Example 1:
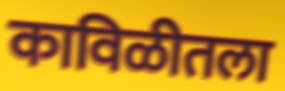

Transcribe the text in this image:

काविळीतला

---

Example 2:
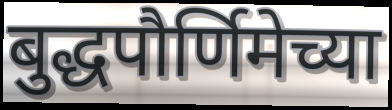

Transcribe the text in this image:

बुद्धपौर्णिमेच्या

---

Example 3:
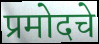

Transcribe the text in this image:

प्रमोदचे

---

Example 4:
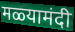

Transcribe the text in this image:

मळ्यामंदी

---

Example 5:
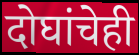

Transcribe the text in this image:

दोघांचेही